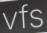
vfs